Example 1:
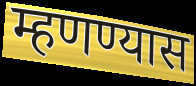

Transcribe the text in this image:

म्हणण्यास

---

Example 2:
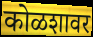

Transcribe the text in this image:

कोळशावर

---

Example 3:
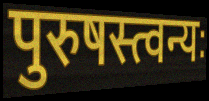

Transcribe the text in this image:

पुरुषस्त्वन्यः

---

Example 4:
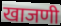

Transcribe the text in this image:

खाजणी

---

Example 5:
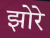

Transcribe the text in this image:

झोरे